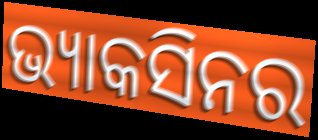
ଭ୍ୟାକସିନର